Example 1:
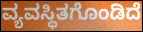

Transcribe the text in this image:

ವ್ಯವಸ್ಥಿತಗೊಂಡಿದೆ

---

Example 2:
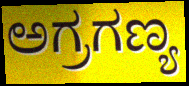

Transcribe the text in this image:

ಅಗ್ರಗಣ್ಯ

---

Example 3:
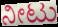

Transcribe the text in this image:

ನೀಟು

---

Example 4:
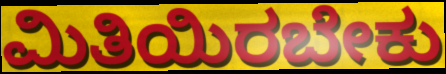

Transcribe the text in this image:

ಮಿತಿಯಿರಬೇಕು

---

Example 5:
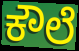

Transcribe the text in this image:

ಕೌಲೆ